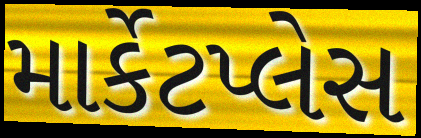
માર્કેટપ્લેસ